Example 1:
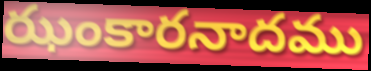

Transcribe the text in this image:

ఝంకారనాదము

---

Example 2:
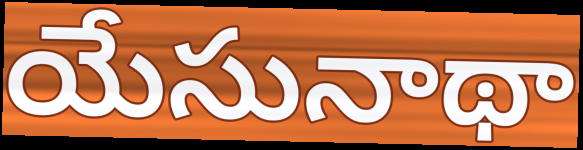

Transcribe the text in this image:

యేసునాథా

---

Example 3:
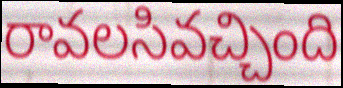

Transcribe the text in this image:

రావలసివచ్చింది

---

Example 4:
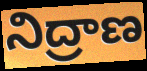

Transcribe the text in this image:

నిద్రాణ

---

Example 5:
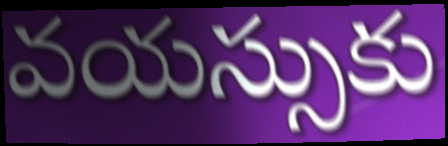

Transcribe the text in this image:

వయస్సుకు